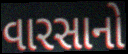
વારસાનો